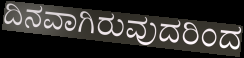
ದಿನವಾಗಿರುವುದರಿಂದ